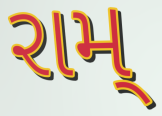
રામ્